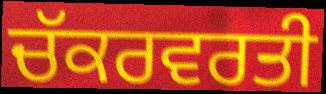
ਚੱਕਰਵਰਤੀ